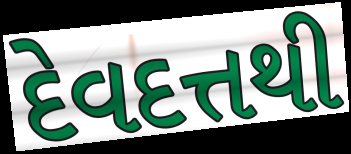
દેવદત્તથી